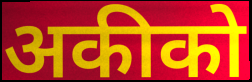
अकीको